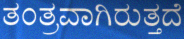
ತಂತ್ರವಾಗಿರುತ್ತದೆ